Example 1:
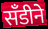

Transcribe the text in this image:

सॅंडीने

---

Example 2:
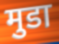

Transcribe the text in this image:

मुडा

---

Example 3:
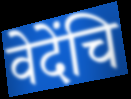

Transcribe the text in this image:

वेदेंचि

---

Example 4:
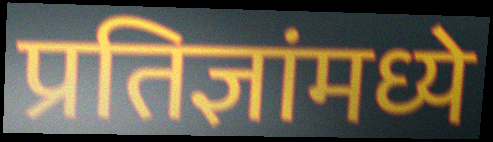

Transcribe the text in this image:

प्रतिज्ञांमध्ये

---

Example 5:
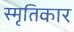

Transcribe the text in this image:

स्मृतिकार